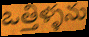
ఒత్తిళ్ళను